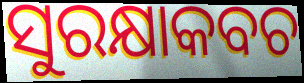
ସୁରକ୍ଷାକବଚ